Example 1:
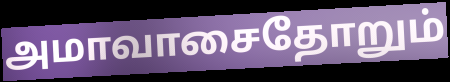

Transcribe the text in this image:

அமாவாசைதோறும்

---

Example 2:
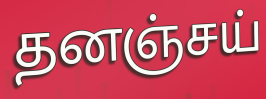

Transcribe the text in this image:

தனஞ்சய்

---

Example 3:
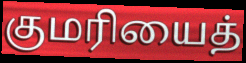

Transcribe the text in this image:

குமரியைத்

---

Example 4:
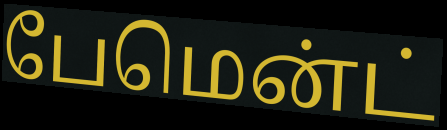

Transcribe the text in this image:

பேமென்ட்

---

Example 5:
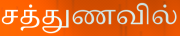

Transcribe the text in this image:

சத்துணவில்